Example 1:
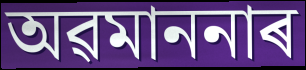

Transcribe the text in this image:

অৱমাননাৰ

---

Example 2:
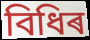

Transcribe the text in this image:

বিধিৰ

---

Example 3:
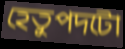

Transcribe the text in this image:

হেতুপদটো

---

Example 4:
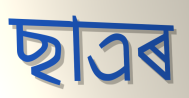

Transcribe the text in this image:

ছাত্ৰৰ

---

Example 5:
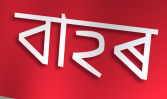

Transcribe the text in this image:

বাহৰ